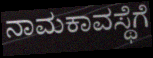
ನಾಮಕಾವಸ್ಥೆಗೆ